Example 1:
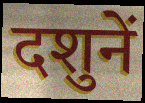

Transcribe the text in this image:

दशुनें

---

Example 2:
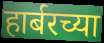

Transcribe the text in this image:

हार्बरच्या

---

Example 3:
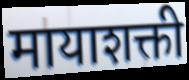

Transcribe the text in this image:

मायाशक्ती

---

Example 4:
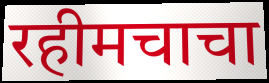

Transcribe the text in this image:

रहीमचाचा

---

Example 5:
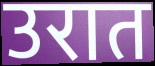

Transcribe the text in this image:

उरात